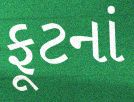
ફૂટનાં